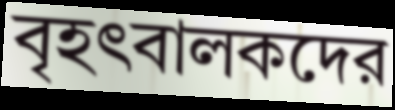
বৃহৎবালকদের